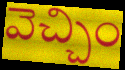
వెచ్చిం